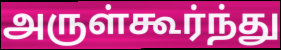
அருள்கூர்ந்து